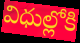
విధుల్లోకి